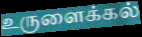
உருளைக்கல்